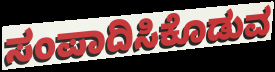
ಸಂಪಾದಿಸಿಕೊಡುವ